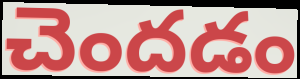
చెందడం